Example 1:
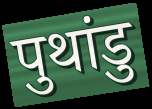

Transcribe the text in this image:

पुथांडु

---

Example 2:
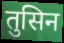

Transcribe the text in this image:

तुसिन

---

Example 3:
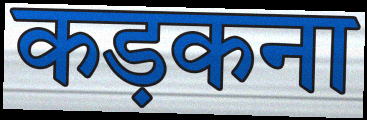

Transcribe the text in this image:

कड़कना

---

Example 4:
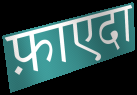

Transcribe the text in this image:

फ़ाएदा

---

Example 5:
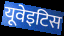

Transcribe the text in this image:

यूवेइटिस